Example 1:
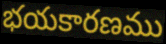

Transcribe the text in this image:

భయకారణము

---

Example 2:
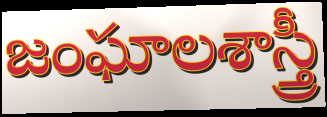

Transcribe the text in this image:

జంఘాలశాస్త్రీ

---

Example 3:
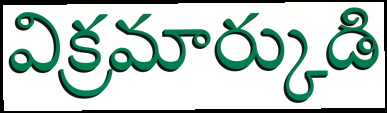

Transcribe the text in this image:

విక్రమార్కుడి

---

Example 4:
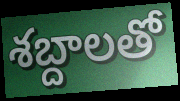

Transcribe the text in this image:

శబ్దాలతో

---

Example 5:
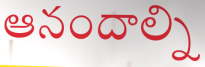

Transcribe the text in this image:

ఆనందాల్ని